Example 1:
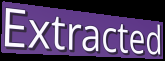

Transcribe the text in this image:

Extracted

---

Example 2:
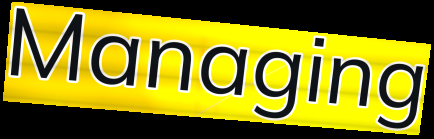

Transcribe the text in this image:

Managing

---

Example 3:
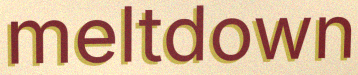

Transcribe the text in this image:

meltdown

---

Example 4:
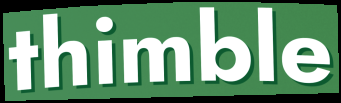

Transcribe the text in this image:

thimble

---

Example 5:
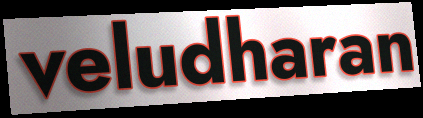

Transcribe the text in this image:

veludharan